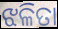
ଝଳିତା